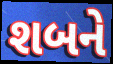
શબને